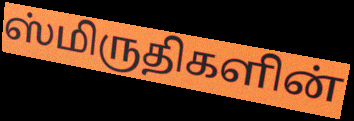
ஸ்மிருதிகளின்